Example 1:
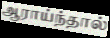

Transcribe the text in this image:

ஆராய்ந்தால்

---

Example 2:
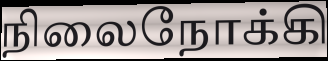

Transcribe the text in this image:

நிலைநோக்கி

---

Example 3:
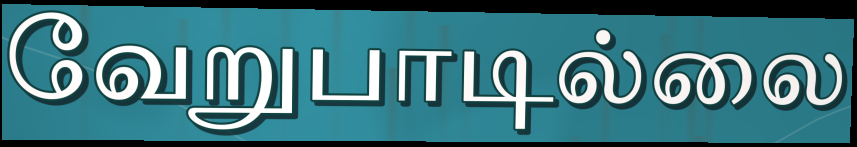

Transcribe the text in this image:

வேறுபாடில்லை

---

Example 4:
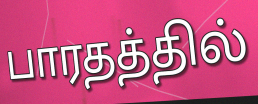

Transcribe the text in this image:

பாரதத்தில்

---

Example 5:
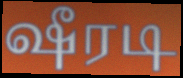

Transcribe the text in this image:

ஷீரடி